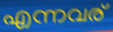
എന്നവര്